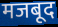
मजबूद